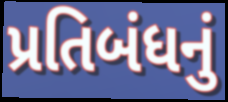
પ્રતિબંધનું